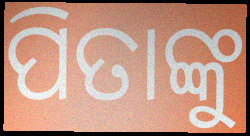
ପିତାଙ୍କୁ